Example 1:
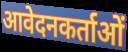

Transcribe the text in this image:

आवेदनकर्ताओं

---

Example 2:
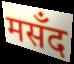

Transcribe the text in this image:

मसँद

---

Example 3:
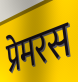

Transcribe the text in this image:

प्रेमरस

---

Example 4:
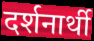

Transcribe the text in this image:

दर्शनार्थी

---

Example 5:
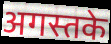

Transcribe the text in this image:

अगस्तके